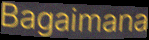
Bagaimana